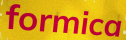
formica